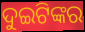
ଦୁଇଟିଙ୍କର